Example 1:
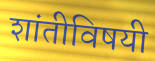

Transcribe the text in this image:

शांतीविषयी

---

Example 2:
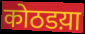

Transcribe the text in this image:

कोठडय़ा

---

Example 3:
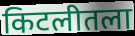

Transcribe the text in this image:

किटलीतला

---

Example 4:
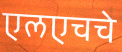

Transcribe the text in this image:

एलएचचे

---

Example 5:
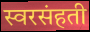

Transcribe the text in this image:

स्वरसंहती